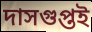
দাসগুপ্তই